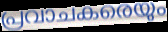
പ്രവാചകരെയും